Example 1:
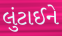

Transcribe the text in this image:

લુંટાઈને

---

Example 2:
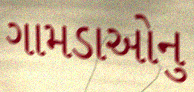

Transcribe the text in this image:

ગામડાઓનુ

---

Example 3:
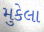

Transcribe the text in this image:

મુકેલા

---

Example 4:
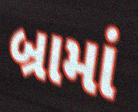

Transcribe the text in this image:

બ્રામાં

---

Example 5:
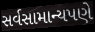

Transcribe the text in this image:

સર્વસામાન્યપણે